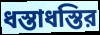
ধস্তাধস্তির